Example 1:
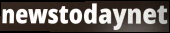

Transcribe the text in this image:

newstodaynet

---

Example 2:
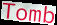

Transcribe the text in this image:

Tomb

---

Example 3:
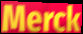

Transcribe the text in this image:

Merck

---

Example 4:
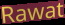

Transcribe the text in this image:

Rawat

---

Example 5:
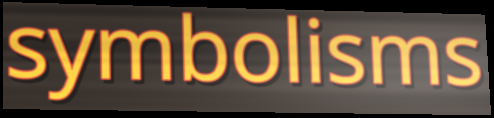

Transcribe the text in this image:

symbolisms